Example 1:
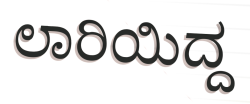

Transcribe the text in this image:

ಲಾರಿಯಿದ್ದ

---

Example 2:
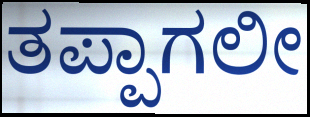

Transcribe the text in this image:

ತಪ್ಪಾಗಲೀ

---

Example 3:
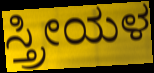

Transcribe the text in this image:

ಸ್ತ್ರೀಯಳ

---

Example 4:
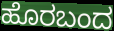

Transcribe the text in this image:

ಹೊರಬಂದ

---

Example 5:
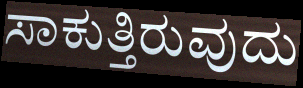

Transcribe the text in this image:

ಸಾಕುತ್ತಿರುವುದು